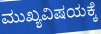
ಮುಖ್ಯವಿಷಯಕ್ಕೆ